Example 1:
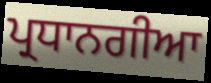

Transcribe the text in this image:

ਪ੍ਰਧਾਨਗੀਆ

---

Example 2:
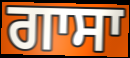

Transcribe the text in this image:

ਗਾਸਾ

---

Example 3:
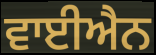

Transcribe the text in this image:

ਵਾਈਐਨ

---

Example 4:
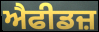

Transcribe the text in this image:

ਐਫੀਡਜ਼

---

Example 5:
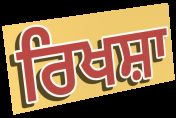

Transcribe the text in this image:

ਰਿਖਸ਼ਾ